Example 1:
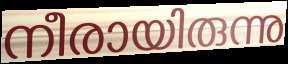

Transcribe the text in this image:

നീരായിരുന്നു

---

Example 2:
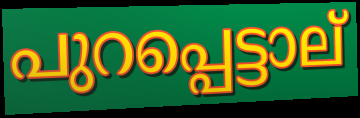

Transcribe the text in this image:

പുറപ്പെട്ടാല്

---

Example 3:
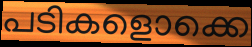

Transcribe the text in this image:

പടികളൊക്കെ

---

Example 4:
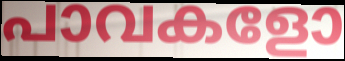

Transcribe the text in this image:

പാവകളോ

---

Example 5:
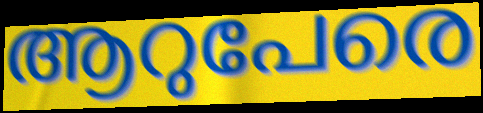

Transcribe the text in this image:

ആറുപേരെ